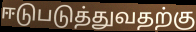
ஈடுபடுத்துவதற்கு